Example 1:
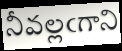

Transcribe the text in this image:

నీవల్లఁగాని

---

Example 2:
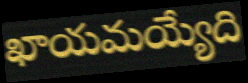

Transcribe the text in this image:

ఖాయమయ్యేది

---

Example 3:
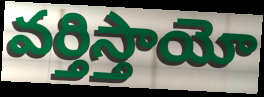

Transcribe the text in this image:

వర్తిస్తాయో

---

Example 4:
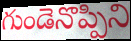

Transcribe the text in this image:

గుండెనొప్పిని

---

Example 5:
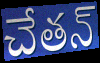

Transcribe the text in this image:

చేతన్